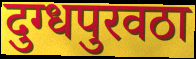
दुग्धपुरवठा